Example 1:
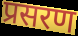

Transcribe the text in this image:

प्रसरण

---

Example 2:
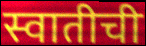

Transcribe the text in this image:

स्वातीची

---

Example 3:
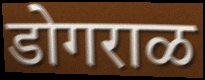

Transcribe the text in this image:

डोगराळ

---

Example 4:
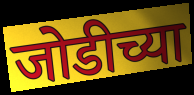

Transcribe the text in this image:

जोडीच्या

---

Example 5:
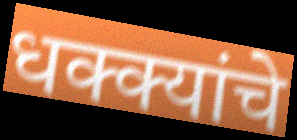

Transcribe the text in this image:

धक्क्यांचे